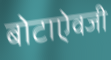
बोटाऐवजी